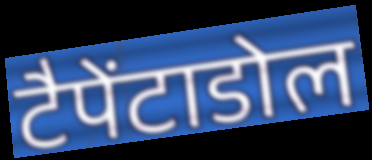
टैपेंटाडोल